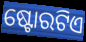
ଷ୍ଟୋରଟିଏ